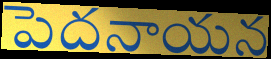
పెదనాయన